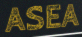
ASEA